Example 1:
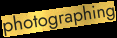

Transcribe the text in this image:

photographing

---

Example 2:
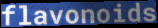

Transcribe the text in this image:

flavonoids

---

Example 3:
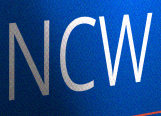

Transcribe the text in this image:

NCW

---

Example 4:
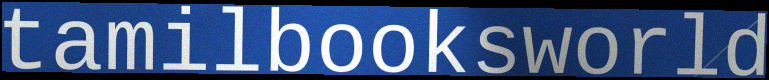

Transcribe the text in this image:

tamilbooksworld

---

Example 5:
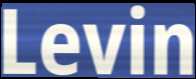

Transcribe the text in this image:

Levin